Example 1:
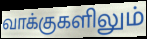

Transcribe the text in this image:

வாக்குகளிலும்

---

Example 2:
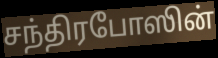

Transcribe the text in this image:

சந்திரபோஸின்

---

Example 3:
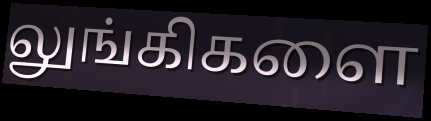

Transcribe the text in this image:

லுங்கிகளை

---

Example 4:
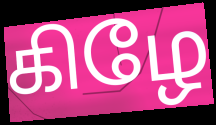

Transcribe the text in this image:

கிழே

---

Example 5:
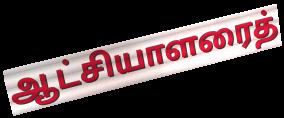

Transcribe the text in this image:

ஆட்சியாளரைத்